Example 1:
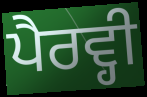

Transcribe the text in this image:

ਪੈਰਵ੍ਹੀ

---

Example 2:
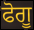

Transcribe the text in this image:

ਫੋਗੂ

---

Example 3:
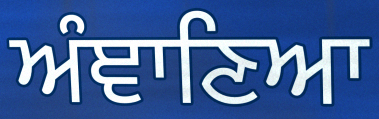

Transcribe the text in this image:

ਅੰਞਾਣਿਆ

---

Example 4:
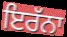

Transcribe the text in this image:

ਇਰੱਨਾ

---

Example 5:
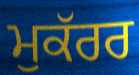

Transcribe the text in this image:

ਮੁਕੱਰਰ